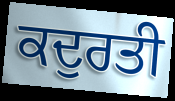
ਕਦੁਰਤੀ